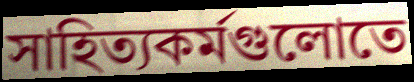
সাহিত্যকর্মগুলোতে